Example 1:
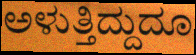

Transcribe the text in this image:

ಅಳುತ್ತಿದ್ದುದೂ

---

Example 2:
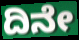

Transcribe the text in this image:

ದಿನೇ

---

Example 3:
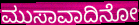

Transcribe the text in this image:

ಮುಸಾವಾದಿನೋ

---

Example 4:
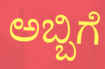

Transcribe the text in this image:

ಅಬ್ಬಿಗೆ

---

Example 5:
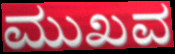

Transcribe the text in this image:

ಮುಖವ